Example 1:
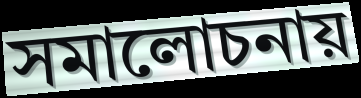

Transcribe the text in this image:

সমালোচনায়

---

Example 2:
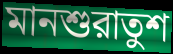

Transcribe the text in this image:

মানশুরাতুশ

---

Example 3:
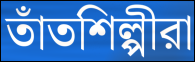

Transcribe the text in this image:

তাঁতশিল্পীরা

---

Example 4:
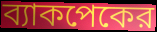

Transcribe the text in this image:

ব্যাকপেকের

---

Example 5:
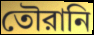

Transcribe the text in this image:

তৌরানি